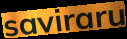
saviraru